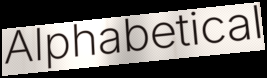
Alphabetical